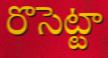
రొసెట్టా